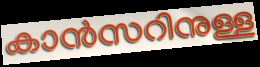
കാൻസറിനുള്ള